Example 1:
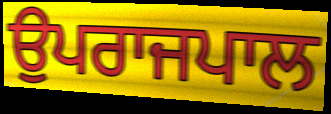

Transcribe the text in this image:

ਉਪਰਾਜਪਾਲ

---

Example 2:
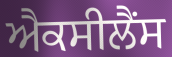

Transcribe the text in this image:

ਐਕਸੀਲੈਂਸ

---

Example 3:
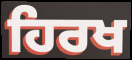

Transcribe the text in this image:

ਹਿਰਖ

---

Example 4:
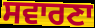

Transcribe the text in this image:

ਸਵਾਰਣਾ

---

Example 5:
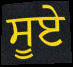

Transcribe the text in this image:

ਸੂਏ